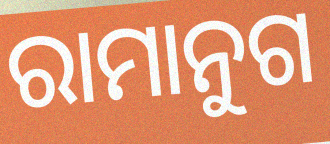
ରାମାନୁଗ